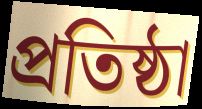
প্ৰতিষ্ঠা